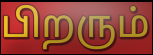
பிறரும்